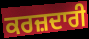
ਕਰਜ਼ਦਾਰੀ